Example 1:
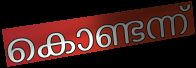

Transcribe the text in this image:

കൊണ്ടന്ന്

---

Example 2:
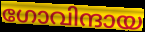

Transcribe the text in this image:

ഗോവിന്ദായ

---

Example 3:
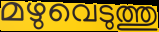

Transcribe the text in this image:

മഴുവെടുത്തു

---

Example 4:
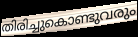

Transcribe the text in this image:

തിരിച്ചുകൊണ്ടുവരും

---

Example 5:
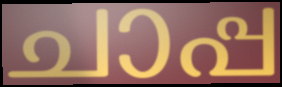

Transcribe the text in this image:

ചാപ്പ